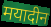
मयादीन